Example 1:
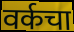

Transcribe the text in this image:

वर्कचा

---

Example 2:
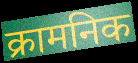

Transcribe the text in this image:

क्रामनिक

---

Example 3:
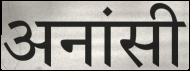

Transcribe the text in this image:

अनांसी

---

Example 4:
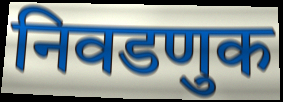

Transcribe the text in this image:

निवडणुक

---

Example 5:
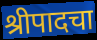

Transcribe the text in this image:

श्रीपादचा